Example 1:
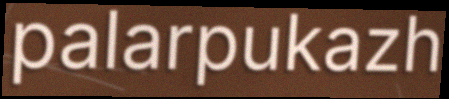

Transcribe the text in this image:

palarpukazh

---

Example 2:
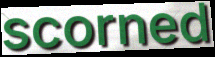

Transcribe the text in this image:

scorned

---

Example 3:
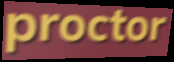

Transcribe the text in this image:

proctor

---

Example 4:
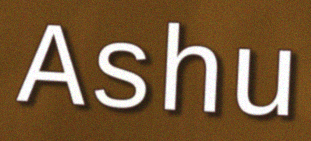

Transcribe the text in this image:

Ashu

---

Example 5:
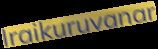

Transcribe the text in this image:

Iraikuruvanar